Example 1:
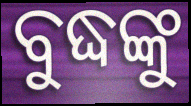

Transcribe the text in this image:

ବୁଦ୍ଧଙ୍କୁ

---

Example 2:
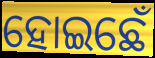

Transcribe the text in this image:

ହୋଇଛେଁ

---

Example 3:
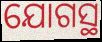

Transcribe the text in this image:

ଯୋଗସ୍ଥ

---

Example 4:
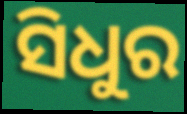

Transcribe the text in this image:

ସିଧୁର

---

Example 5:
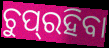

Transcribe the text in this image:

ଚୁପ୍‌ରହିବା